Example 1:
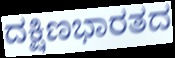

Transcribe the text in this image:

ದಕ್ಷಿಣಭಾರತದ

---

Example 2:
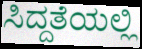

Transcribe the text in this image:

ಸಿದ್ದತೆಯಲ್ಲಿ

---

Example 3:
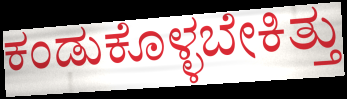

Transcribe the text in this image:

ಕಂಡುಕೊಳ್ಳಬೇಕಿತ್ತು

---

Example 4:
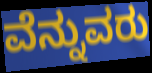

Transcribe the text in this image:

ವೆನ್ನುವರು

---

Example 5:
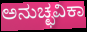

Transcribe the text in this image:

ಅನುಚ್ಛವಿಕಾ